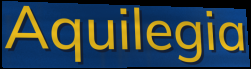
Aquilegia